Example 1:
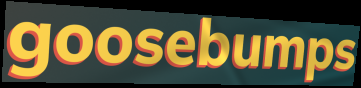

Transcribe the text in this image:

goosebumps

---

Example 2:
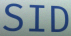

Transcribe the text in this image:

SID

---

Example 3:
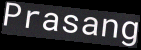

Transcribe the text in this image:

Prasang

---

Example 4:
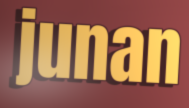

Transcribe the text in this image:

junan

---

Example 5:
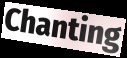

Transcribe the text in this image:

Chanting